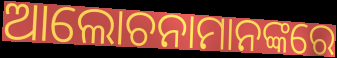
ଆଲୋଚନାମାନଙ୍କରେ